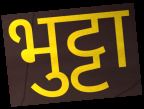
भुट्टा